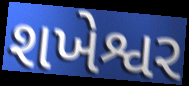
શખેશ્વર